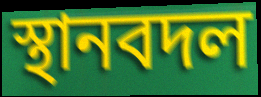
স্থানবদল